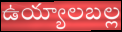
ఉయ్యాలబల్ల